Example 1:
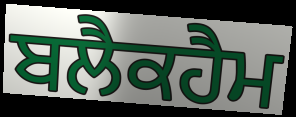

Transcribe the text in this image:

ਬਲੈਕਹੈਮ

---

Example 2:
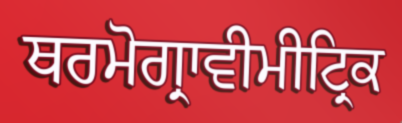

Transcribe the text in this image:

ਥਰਮੋਗ੍ਰਾਵੀਮੀਟ੍ਰਿਕ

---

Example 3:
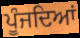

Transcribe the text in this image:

ਪੂੰਜਦਿਆਂ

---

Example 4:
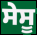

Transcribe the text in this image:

ਸੇਸੂ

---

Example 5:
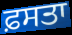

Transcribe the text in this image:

ਫ਼ਸਤਾ